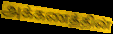
அக்கணத்தின்